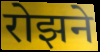
रोझने